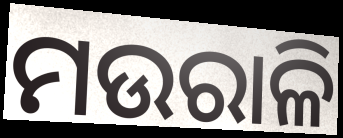
ମଉରାଳି